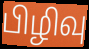
பிழிவு